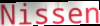
Nissen